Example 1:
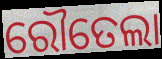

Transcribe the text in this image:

ରୌତେଲା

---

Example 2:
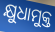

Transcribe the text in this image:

କ୍ଷୁଧାମୁକ୍ତ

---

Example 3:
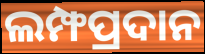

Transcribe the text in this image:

ଲମ୍ଫପ୍ରଦାନ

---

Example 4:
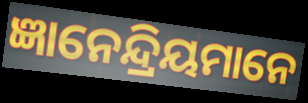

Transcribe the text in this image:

ଜ୍ଞାନେନ୍ଦ୍ରିୟମାନେ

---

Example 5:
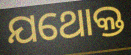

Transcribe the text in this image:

ଯଥୋକ୍ତ